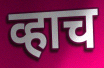
व्हाच